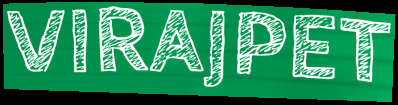
VIRAJPET